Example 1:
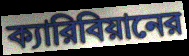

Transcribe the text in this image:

ক্যারিবিয়ানের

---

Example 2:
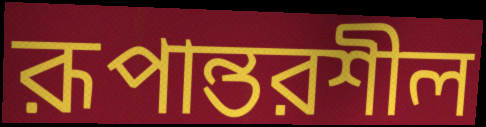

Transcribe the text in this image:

রূপান্তরশীল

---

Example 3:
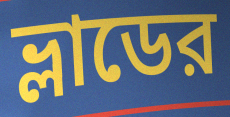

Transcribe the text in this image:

ভ্লাডের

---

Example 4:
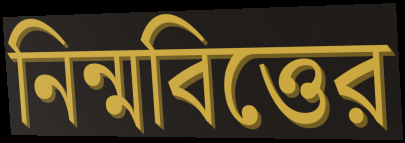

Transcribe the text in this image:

নিন্মবিত্তের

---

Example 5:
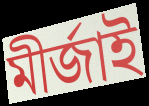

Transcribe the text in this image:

মীর্জাই